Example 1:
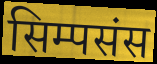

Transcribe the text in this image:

सिम्पसंस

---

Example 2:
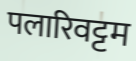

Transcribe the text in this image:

पलारिवट्टम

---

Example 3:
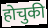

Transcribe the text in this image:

होचुकी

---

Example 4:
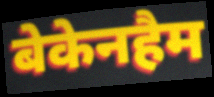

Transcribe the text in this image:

बेकेनहैम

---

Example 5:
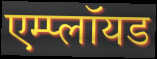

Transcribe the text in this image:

एम्प्लॉयड